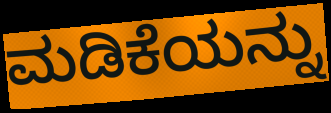
ಮಡಿಕೆಯನ್ನು